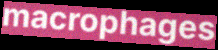
macrophages